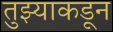
तुझ्याकडून